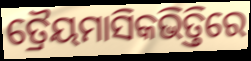
ତ୍ରୈୟମାସିକଭିତ୍ତିରେ